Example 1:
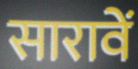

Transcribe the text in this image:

सारावें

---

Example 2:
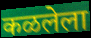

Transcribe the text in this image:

कळलेला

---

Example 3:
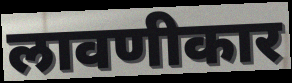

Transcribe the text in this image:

लावणीकार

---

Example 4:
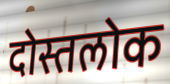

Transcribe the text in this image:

दोस्तलोक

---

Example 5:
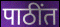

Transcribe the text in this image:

पाठींत